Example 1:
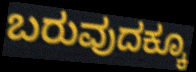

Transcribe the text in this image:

ಬರುವುದಕ್ಕೂ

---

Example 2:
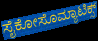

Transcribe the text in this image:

ಸೈಕೋಸೊಮ್ಯಾಟಿಕ್ಸ್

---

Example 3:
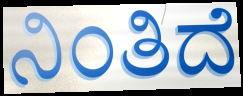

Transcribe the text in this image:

ನಿಂತಿದೆ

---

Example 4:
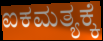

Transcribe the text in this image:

ಐಕಮತ್ಯಕ್ಕೆ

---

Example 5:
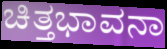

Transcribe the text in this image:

ಚಿತ್ತಭಾವನಾ